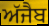
ਅੱਜੈਬ